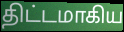
திட்டமாகிய